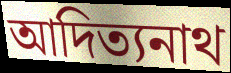
আদিত্যনাথ